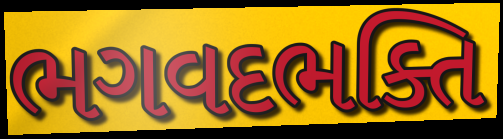
ભગવદભક્તિ